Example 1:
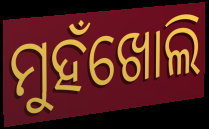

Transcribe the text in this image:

ମୁହଁଖୋଲି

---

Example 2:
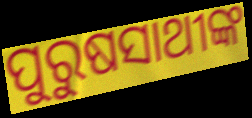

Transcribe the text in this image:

ପୁରୁଷସାଥୀଙ୍କ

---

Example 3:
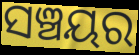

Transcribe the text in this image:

ସଞ୍ଚୟର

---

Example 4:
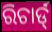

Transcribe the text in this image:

ରିଚାର୍ଡ୍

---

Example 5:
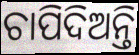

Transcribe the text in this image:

ଚାପିଦିଅନ୍ତି